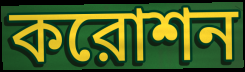
করোশন